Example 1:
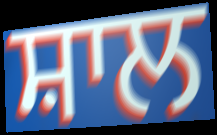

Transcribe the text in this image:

ਸ਼ਾਲ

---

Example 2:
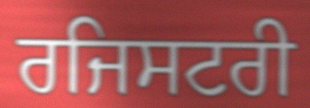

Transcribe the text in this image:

ਰਜਿਸਟਰੀ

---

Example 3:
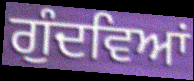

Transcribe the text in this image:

ਗੁੰਦਵਿਆਂ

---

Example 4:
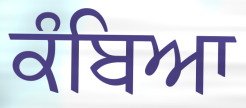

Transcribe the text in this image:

ਕੰਬਿਆ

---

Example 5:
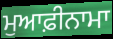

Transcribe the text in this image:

ਮੁਆਫ਼ੀਨਾਮਾ